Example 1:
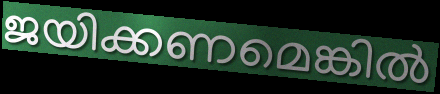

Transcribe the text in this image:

ജയിക്കണമെങ്കിൽ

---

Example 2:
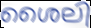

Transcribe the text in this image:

ശൈലി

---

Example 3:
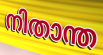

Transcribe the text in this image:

നിതാന്ത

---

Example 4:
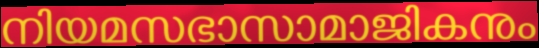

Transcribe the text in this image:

നിയമസഭാസാമാജികനും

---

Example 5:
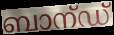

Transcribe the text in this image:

ബാന്ഡ്